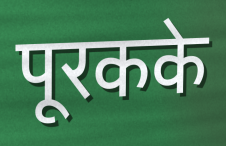
पूरकके